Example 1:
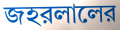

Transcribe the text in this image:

জহরলালের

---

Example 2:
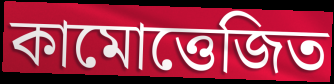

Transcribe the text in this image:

কামোত্তেজিত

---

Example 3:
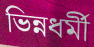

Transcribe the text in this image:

ভিন্নধর্মী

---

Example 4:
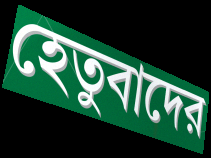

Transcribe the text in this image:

হেতুবাদের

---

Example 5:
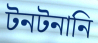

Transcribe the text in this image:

টনটনানি